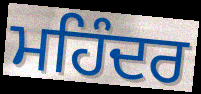
ਮਹਿੰਦਰ